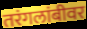
तरंगलांबीवर